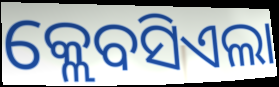
କ୍ଲେବସିଏଲା